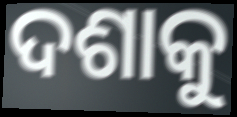
ଦଶାକୁ